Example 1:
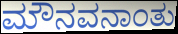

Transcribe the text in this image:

ಮೌನವನಾಂತು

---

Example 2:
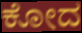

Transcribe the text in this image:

ಕೋದ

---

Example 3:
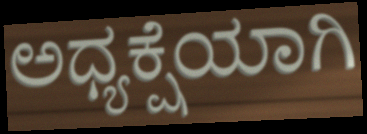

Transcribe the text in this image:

ಅಧ್ಯಕ್ಷೆಯಾಗಿ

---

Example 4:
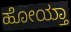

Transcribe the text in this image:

ಹೋಯ್ತಾ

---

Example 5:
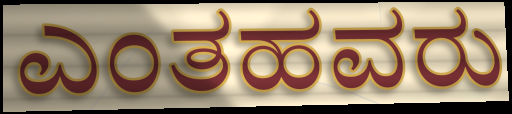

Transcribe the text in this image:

ಎಂತಹವರು